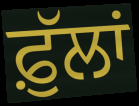
ਫ਼ੁੱਲਾਂ